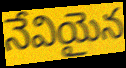
నేవియైన